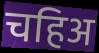
चहिअ